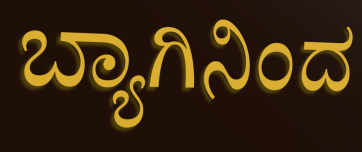
ಬ್ಯಾಗಿನಿಂದ